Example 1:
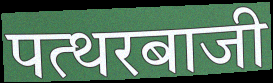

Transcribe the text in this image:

पत्‍थरबाजी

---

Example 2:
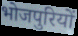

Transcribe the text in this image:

भोजपुरियों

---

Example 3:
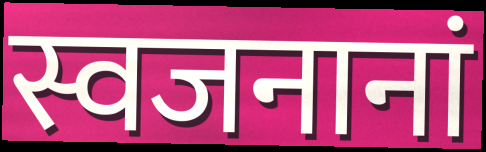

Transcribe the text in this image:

स्वजनानां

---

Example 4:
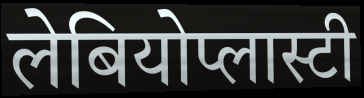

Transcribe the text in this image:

लेबियोप्लास्टी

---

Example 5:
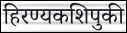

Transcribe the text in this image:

हिरण्यकशिपुकी